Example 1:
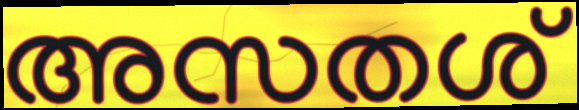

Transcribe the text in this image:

അസതശ്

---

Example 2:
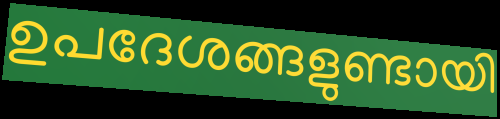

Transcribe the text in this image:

ഉപദേശങ്ങളുണ്ടായി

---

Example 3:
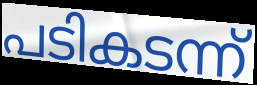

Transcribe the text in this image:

പടികടന്ന്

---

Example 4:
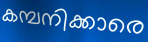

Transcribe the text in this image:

കമ്പനിക്കാരെ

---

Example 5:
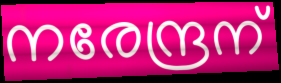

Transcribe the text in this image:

നരേന്ദ്രന്